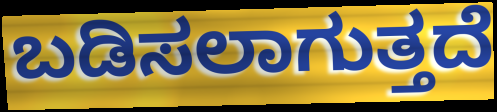
ಬಡಿಸಲಾಗುತ್ತದೆ